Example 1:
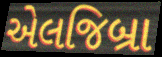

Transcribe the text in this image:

એલજિબ્રા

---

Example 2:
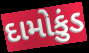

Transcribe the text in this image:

દામોકુંડ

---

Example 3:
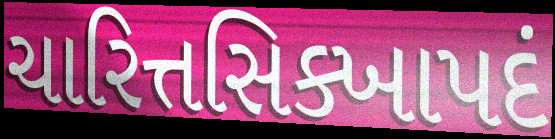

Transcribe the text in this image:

ચારિત્તસિક્ખાપદં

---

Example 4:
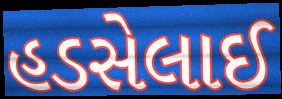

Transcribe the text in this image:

હડસેલાઈ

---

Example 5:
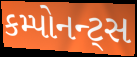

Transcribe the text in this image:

કમ્પોનન્ટ્સ